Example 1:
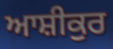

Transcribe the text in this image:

ਆਸ਼ੀਕੁਰ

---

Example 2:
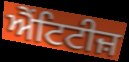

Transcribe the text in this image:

ਐਂਟਿਟੀਜ਼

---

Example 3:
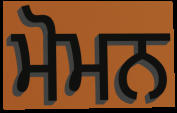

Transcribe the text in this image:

ਮੋਮਨ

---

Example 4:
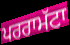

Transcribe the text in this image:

ਪਰਰਾਮੱਟਾ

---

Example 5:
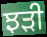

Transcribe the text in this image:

ਝੜੀ